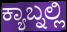
ಕ್ಯಾಬ್ನಲ್ಲಿ